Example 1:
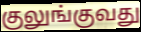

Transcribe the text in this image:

குலுங்குவது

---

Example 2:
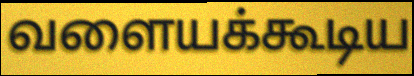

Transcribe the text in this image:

வளையக்கூடிய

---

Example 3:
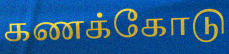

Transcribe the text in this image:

கணக்கோடு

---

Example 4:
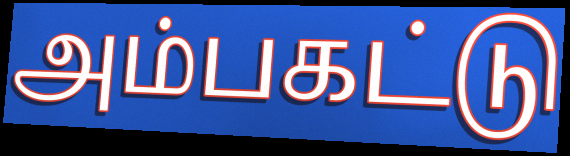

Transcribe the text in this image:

அம்பகட்டு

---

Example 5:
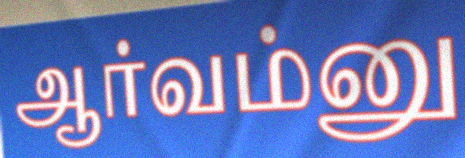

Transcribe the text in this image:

ஆர்வம்னு